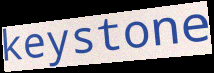
keystone